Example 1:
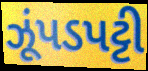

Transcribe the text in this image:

ઝૂંપડપટ્ટી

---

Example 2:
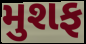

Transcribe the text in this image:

મુશફ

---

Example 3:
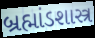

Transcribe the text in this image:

બ્રહ્માંડશાસ્ત્ર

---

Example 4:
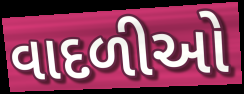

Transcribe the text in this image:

વાદળીઓ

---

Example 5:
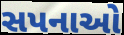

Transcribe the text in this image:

સપનાઓ